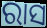
ରାସ